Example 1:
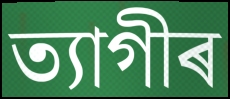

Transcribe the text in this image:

ত্যাগীৰ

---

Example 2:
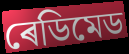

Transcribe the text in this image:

ৰেডিমেড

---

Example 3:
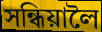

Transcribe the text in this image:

সন্ধিয়ালৈ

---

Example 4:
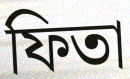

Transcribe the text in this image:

ফিতা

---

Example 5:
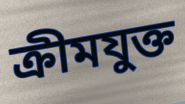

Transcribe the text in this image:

ক্ৰীমযুক্ত